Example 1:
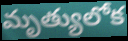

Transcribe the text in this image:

మృత్యులోక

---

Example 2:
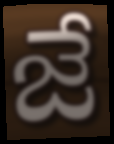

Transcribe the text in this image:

జే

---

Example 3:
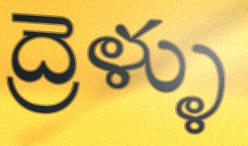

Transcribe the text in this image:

ద్రెళ్ళు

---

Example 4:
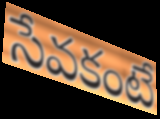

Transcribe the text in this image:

సేవకంటే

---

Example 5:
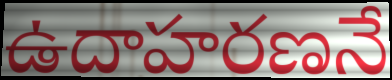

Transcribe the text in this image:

ఉదాహరణనే